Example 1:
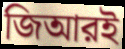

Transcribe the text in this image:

জিআরই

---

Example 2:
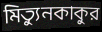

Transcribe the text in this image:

মিত্যুনকাকুর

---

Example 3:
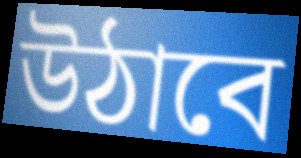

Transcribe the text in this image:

উঠাবে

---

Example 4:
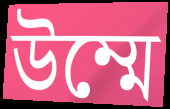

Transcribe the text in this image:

উম্মে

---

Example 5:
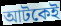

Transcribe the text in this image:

আটকেই